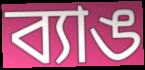
ব্যাঙ